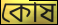
কোষ